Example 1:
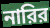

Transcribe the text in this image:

নারির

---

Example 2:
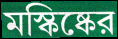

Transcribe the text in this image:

মস্কিষ্কের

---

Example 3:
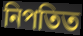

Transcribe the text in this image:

নিপতিত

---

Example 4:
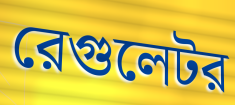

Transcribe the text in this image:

রেগুলেটর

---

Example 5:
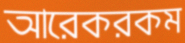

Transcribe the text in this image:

আরেকরকম